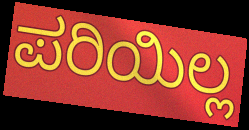
ಪರಿಯಿಲ್ಲ